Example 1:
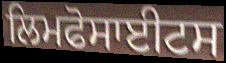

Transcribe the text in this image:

ਲਿਮਫੋਸਾਈਟਸ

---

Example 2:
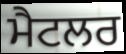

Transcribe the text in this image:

ਮੈਟਲਰ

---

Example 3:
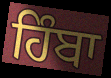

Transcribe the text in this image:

ਹਿੰਬਾ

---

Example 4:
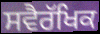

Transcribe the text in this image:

ਸਵੈਰੱਖਿਕ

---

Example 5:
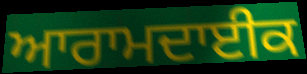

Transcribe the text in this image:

ਆਰਾਮਦਾਈਕ